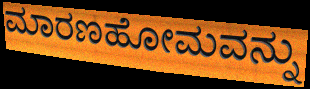
ಮಾರಣಹೋಮವನ್ನು